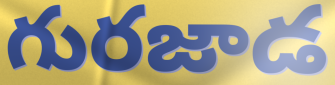
గురజాడ